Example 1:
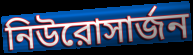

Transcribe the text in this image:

নিউরোসার্জন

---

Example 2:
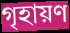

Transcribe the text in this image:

গৃহায়ণ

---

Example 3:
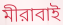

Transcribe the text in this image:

মীরাবাই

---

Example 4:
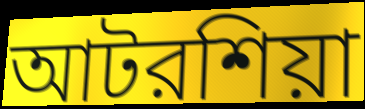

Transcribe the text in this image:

আটরশিয়া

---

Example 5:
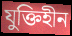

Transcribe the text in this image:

যুক্তিহীন